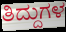
ತಿದ್ದುಗಳ